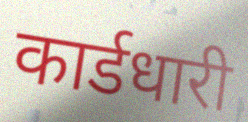
कार्डधारी